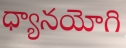
ధ్యానయోగి